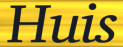
Huis